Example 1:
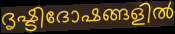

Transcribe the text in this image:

ദൃഷ്ടിദോഷങ്ങളിൽ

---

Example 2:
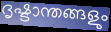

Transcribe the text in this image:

ദൃഷ്ടാന്തങ്ങളും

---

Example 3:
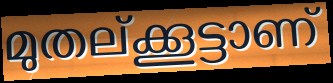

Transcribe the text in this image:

മുതല്ക്കൂട്ടാണ്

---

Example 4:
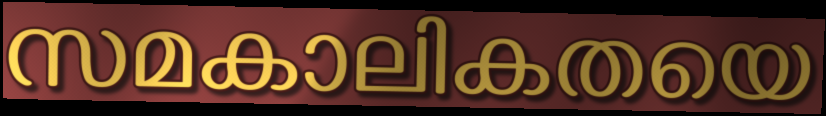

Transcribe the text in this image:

സമകാലികതയെ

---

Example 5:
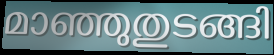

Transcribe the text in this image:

മാഞ്ഞുതുടങ്ങി